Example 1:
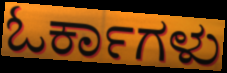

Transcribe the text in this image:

ಓರ್ಕಾಗಳು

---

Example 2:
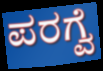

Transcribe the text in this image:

ಪರಗ್ವೆ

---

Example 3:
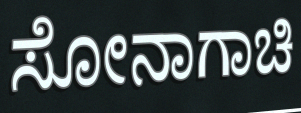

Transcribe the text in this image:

ಸೋನಾಗಾಚಿ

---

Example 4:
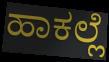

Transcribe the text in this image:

ಹಾಕಲ್ಲೆ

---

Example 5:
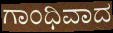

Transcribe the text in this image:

ಗಾಂಧಿವಾದ